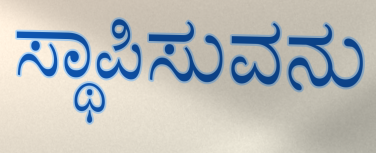
ಸ್ಥಾಪಿಸುವನು